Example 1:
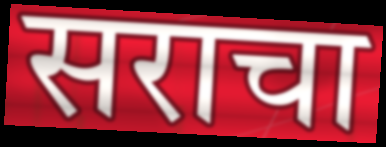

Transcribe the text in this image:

सराचा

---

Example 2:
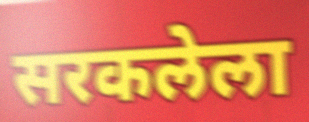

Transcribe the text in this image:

सरकलेला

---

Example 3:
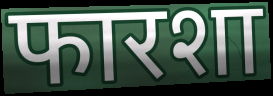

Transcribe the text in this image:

फारशा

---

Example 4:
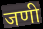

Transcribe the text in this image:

जणी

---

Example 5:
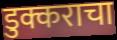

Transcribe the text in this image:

डुक्कराचा